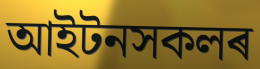
আইটনসকলৰ